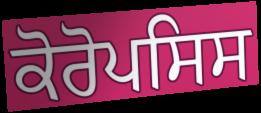
ਕੋਰੋਪਸਿਸ